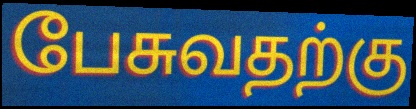
பேசுவதற்கு